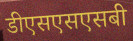
डीएसएसएसबी